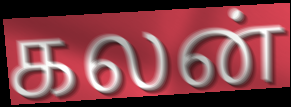
கலன்